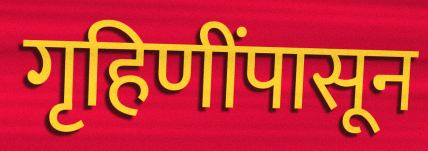
गृहिणींपासून